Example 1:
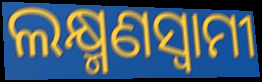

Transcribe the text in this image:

ଲକ୍ଷ୍ମଣସ୍ଵାମୀ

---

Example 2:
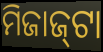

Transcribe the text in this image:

ମିଜାଜ୍‌ଟା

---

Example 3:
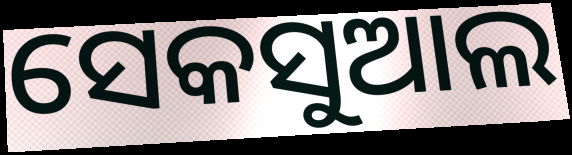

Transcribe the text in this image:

ସେକସୁଆଲ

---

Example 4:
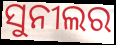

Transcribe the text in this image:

ସୁନୀଲର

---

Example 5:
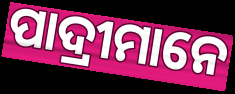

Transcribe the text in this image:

ପାଦ୍ରୀମାନେ